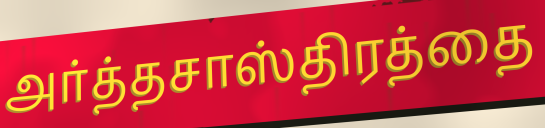
அர்த்தசாஸ்திரத்தை